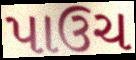
પાઉચ